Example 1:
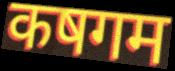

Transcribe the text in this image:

कषगम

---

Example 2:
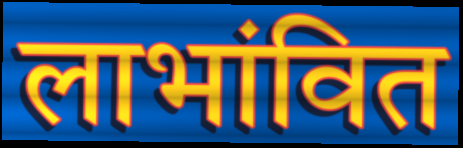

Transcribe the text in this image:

लाभांवित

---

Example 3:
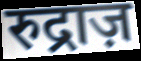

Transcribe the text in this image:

रुद्राज़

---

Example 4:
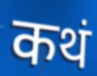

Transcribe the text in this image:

कथं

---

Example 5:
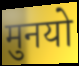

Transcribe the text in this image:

मुनयो